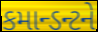
કમાન્ડન્ટને